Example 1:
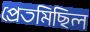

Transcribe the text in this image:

প্রেতমিছিল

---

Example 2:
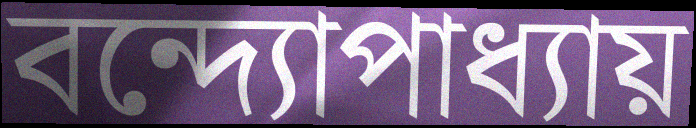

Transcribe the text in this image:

বন্দ্যোপাধ্যায়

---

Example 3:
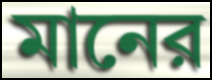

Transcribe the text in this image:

মানের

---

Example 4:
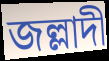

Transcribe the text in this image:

জল্লাদী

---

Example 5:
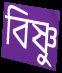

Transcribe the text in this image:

বিষ্ণু